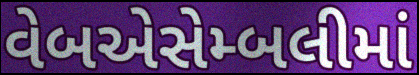
વેબએસેમ્બલીમાં